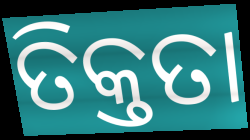
ତିକ୍ତତା